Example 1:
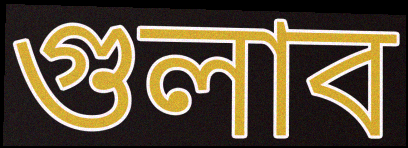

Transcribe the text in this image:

গুলাব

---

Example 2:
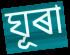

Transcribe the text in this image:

ঘূৰা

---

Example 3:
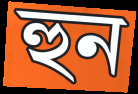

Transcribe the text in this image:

হুন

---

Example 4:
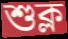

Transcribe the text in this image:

শুক্ল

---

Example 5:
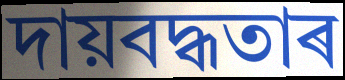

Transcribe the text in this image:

দায়বদ্ধতাৰ